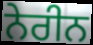
ਨੇਰੀਨ